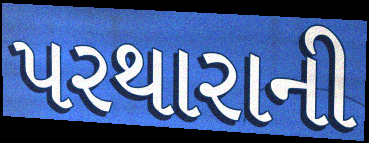
પરથારાની